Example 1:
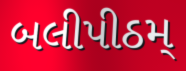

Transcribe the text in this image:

બલીપીઠમ્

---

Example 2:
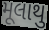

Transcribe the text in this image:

મૂલાથુ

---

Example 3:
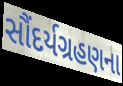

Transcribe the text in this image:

સૌંદર્યગ્રહણના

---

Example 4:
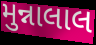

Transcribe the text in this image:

મુન્નાલાલ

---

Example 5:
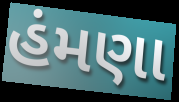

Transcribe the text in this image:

હંમણા